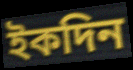
ইকদিন